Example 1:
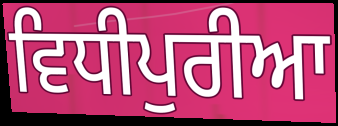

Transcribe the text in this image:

ਵਿਧੀਪੁਰੀਆ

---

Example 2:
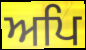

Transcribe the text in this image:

ਅਪਿ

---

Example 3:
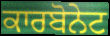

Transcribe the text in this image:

ਕਾਰਬੋਨੇਟ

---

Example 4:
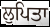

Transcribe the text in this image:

ਲੁਪਿਤਾ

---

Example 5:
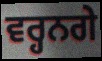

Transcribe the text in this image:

ਵਰ੍ਹਨਗੇ